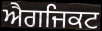
ਐਗਜਿਕਟ